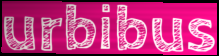
urbibus